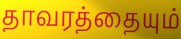
தாவரத்தையும்